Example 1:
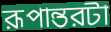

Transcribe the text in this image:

রূপান্তরটা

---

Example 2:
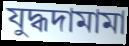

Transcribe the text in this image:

যুদ্ধদামামা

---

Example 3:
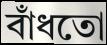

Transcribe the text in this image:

বাঁধতো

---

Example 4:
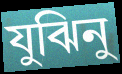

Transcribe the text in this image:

যুঝিনু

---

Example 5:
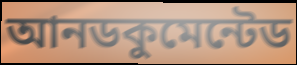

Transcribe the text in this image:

আনডকুমেন্টেড